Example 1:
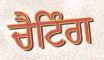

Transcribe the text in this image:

ਚੈਟਿੰਗ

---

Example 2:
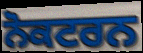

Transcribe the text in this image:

ਨੋਕਟਰਨ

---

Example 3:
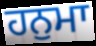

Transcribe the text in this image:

ਹਨੁਮਾ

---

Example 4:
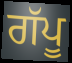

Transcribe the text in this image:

ਗੱਪੂ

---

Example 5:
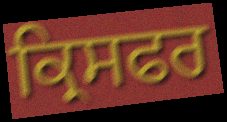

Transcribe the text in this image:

ਕ੍ਰਿਸਫਰ